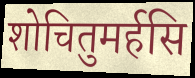
शोचितुमर्हसि